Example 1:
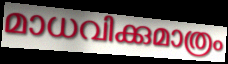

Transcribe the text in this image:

മാധവിക്കുമാത്രം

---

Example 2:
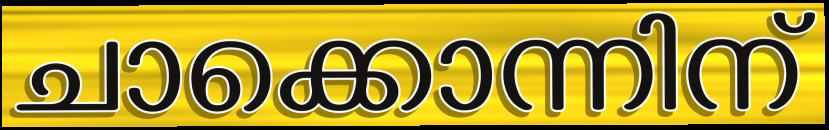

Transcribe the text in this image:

ചാക്കൊന്നിന്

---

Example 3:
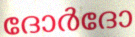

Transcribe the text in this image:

ദോർദോ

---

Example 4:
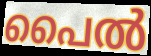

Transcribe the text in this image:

പൈൽ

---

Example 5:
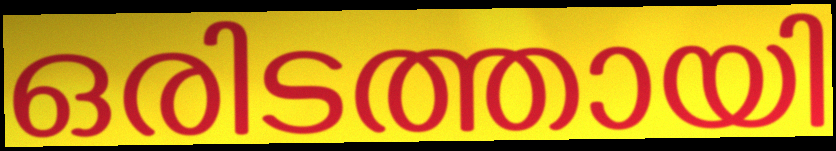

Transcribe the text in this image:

ഒരിടത്തായി